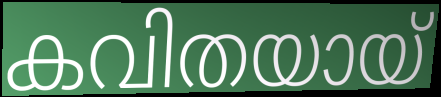
കവിതയായ്